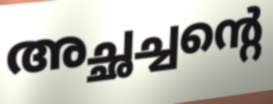
അച്ഛച്ചന്റെ